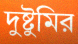
দুষ্টুমির